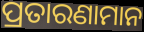
ପ୍ରତାରଣାମାନ